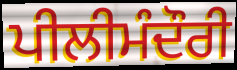
ਪੀਲੀਮੰਦੌਰੀ